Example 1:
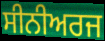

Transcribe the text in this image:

ਸੀਨੀਅਰਜ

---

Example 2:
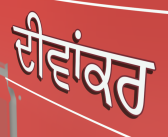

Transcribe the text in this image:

ਦੀਵਾਂਕਰ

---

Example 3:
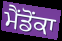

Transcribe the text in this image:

ਮੈਂਡੋਂਕਾ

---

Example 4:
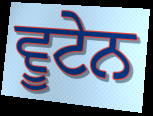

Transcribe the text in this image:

ਵੂਟੇਨ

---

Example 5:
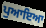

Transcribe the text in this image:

ਪੁਆਇਆ